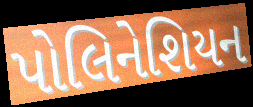
પોલિનેશિયન